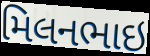
મિલનભાઇ